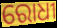
ରୋଧୀ